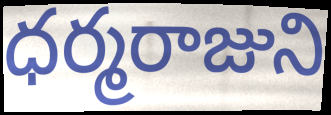
ధర్మరాజుని